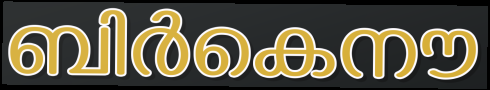
ബിർകെനൗ